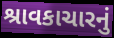
શ્રાવકાચારનું